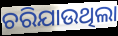
ଚରିଯାଉଥିଲା